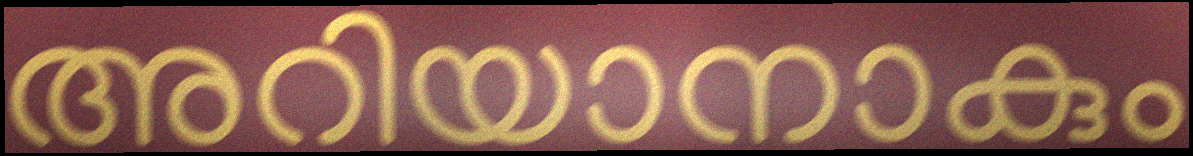
അറിയാനാകും